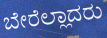
ಬೇರೆಲ್ಲಾದರು